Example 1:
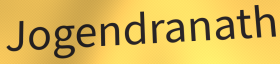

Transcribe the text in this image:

Jogendranath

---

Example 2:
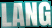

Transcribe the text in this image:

LANG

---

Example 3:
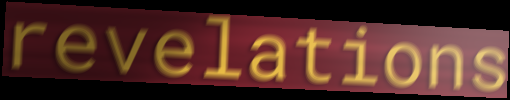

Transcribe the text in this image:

revelations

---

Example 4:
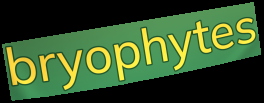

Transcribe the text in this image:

bryophytes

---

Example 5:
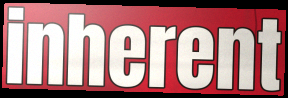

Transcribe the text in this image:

inherent